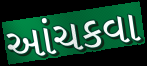
આંચકવા